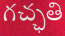
గచ్ఛతి